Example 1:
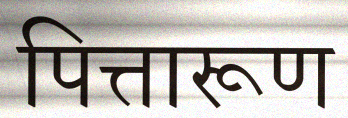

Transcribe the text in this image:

पित्तारूण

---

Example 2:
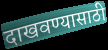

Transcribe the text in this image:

दाखवण्यासाठी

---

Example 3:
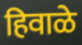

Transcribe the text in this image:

हिवाळे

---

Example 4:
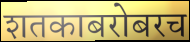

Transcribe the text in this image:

शतकाबरोबरच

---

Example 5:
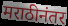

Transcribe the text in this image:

मराठीनंतर